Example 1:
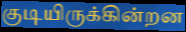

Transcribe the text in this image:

குடியிருக்கின்றன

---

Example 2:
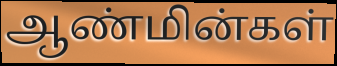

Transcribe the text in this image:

ஆண்மின்கள்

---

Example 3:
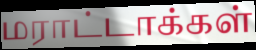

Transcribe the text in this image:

மராட்டாக்கள்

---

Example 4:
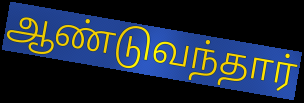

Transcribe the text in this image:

ஆண்டுவந்தார்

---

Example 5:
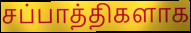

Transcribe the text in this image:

சப்பாத்திகளாக